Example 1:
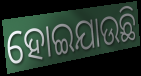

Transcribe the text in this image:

ହୋଇଯାଉଛି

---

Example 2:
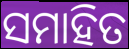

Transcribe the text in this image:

ସମାହିତ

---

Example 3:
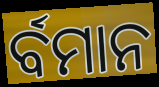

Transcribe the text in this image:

ର୍ବମାନ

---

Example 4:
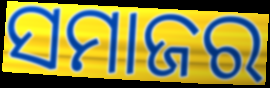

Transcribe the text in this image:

ସମାଜର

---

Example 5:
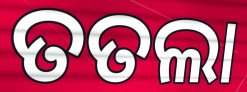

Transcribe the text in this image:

ତତଲା